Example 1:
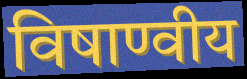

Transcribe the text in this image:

विषाण्वीय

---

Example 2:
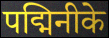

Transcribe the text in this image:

पद्मिनीके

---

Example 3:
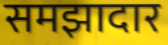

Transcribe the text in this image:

समझादार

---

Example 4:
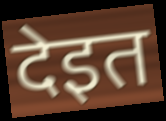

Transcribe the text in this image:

देइत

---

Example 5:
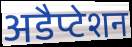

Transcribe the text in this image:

अडैप्टेशन